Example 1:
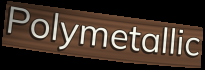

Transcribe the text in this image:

Polymetallic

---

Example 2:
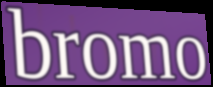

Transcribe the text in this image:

bromo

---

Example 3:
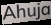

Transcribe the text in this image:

Ahuja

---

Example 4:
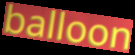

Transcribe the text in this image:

balloon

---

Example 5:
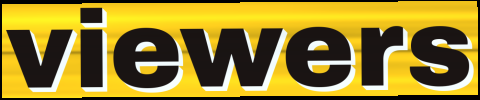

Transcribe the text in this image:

viewers